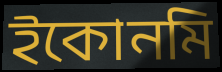
ইকোনমি